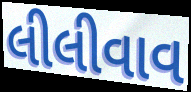
લીલીવાવ